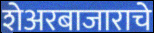
शेअरबाजाराचे